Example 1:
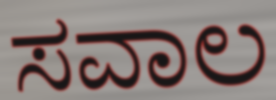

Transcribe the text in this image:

ಸವಾಲ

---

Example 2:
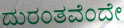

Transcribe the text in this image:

ದುರಂತವೆಂದೇ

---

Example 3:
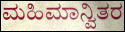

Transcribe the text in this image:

ಮಹಿಮಾನ್ವಿತರ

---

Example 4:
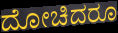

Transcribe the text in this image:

ದೋಚಿದರೂ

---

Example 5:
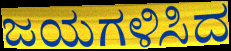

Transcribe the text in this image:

ಜಯಗಳಿಸಿದ